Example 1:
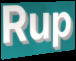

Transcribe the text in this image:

Rup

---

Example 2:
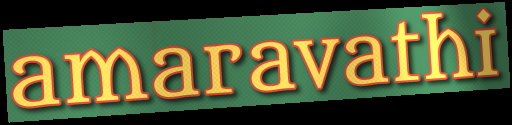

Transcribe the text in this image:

amaravathi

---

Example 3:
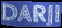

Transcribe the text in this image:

DARJI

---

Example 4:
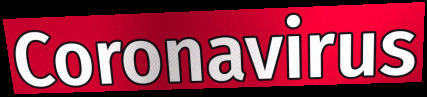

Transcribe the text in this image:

Coronavirus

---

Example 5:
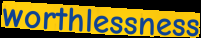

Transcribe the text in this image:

worthlessness